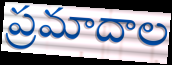
ప్రమాదాల